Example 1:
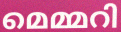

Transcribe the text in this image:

മെമ്മറി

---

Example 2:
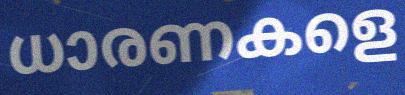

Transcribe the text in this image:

ധാരണകളെ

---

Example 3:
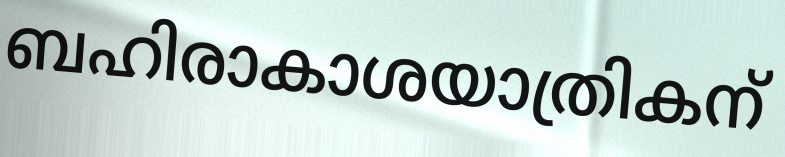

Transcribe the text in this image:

ബഹിരാകാശയാത്രികന്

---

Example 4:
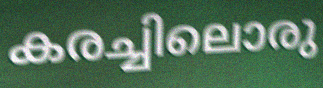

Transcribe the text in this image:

കരച്ചിലൊരു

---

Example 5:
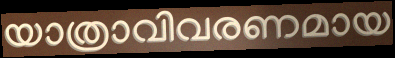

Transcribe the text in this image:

യാത്രാവിവരണമായ